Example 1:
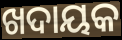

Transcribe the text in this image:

ଖଦାୟକ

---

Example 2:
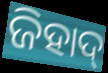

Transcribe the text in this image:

ଜିହାଦ୍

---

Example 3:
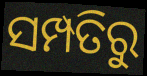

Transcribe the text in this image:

ସମ୍ପତିରୁ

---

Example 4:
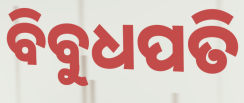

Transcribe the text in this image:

ବିବୁଧପତି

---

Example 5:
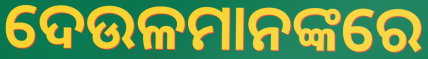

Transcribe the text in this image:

ଦେଉଳମାନଙ୍କରେ